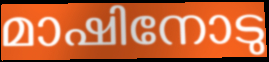
മാഷിനോടു